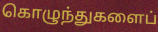
கொழுந்துகளைப்